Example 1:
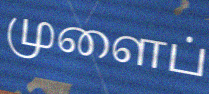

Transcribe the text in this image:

முளைப்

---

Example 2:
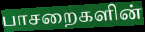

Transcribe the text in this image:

பாசறைகளின்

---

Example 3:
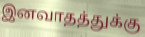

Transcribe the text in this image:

இனவாதத்துக்கு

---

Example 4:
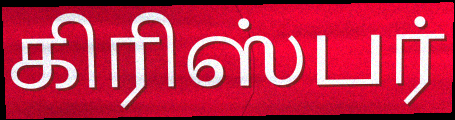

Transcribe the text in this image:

கிரிஸ்பர்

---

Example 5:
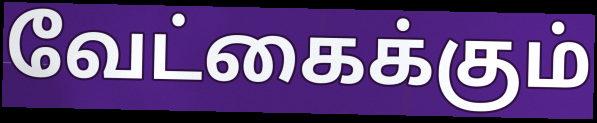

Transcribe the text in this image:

வேட்கைக்கும்